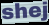
shej